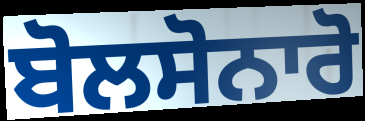
ਬੋਲਸੋਨਾਰੋ